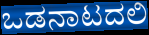
ಒಡನಾಟದಲಿ